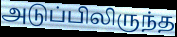
அடுப்பிலிருந்த